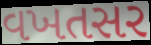
વખતસર